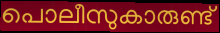
പൊലീസുകാരുണ്ട്